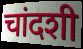
चांदशी